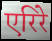
एरिरे